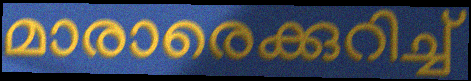
മാരാരെക്കുറിച്ച്